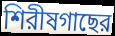
শিরীষগাছের